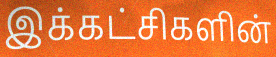
இக்கட்சிகளின்